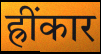
ह्रींकार